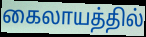
கைலாயத்தில்